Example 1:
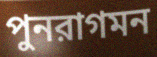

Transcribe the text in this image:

পুনরাগমন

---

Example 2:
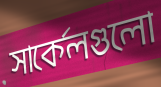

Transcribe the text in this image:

সার্কেলগুলো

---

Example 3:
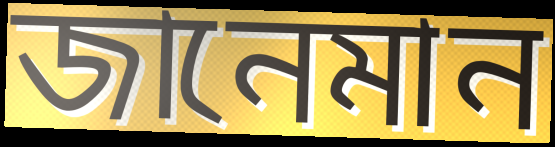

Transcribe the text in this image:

জানেমান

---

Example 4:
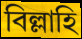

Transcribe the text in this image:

বিল্লাহি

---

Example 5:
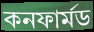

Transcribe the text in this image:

কনফার্মড